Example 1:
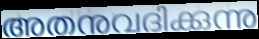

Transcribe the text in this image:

അതനുവദിക്കുന്നു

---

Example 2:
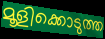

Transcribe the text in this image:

മൂളിക്കൊടുത്ത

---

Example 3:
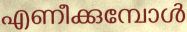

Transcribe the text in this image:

എണീക്കുമ്പോൾ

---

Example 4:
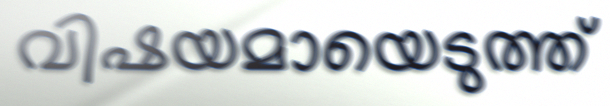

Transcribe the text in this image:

വിഷയമായെടുത്ത്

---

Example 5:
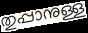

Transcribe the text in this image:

തുപ്പാനുള്ള